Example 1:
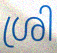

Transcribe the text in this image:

ശ്രി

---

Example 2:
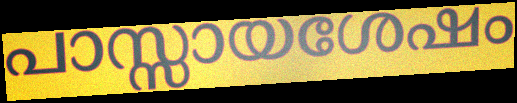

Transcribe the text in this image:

പാസ്സായശേഷം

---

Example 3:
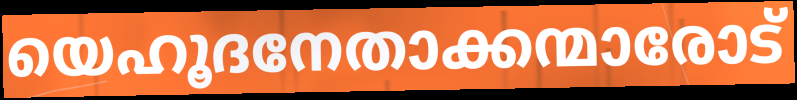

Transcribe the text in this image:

യെഹൂദനേതാക്കന്മാരോട്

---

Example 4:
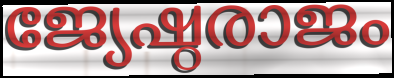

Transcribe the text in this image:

ജ്യേഷ്ഠരാജം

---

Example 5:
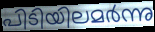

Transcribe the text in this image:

പിടിയിലമർന്നു